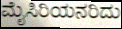
ಮೈಸಿರಿಯನರಿದು